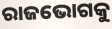
ରାଜଭୋଗକୁ